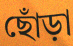
ছোঁড়া